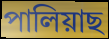
পালিয়াছ